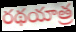
రథయాత్ర